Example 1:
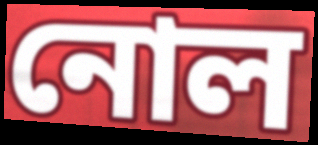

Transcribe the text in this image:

নোল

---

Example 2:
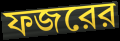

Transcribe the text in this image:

ফজরের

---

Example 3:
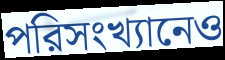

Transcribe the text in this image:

পরিসংখ্যানেও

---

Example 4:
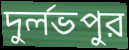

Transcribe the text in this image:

দুর্লভপুর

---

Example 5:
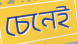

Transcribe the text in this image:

চেনেই